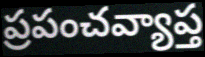
ప్రపంచవ్యాప్త